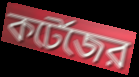
কর্টেজের